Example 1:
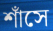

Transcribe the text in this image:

শাঁসে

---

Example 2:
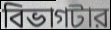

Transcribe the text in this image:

বিভাগটার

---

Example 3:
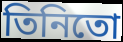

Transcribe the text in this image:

তিনিতো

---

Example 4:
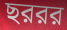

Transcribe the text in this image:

ছররর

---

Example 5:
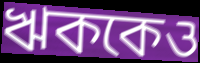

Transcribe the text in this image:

ঋককেও